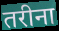
तरीना